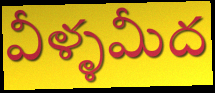
వీళ్ళమీద